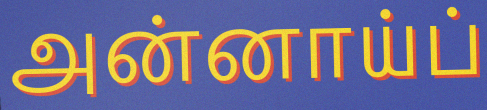
அன்னாய்ப்